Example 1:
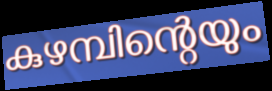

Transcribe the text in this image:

കുഴമ്പിന്റെയും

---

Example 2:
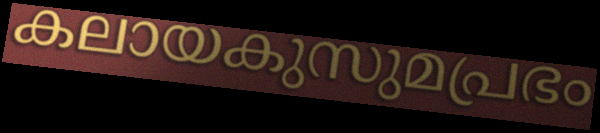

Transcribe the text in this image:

കലായകുസുമപ്രഭം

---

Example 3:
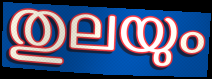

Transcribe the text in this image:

തുലയും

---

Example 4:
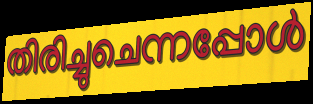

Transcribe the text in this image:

തിരിച്ചുചെന്നപ്പോൾ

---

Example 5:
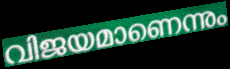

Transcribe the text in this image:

വിജയമാണെന്നും